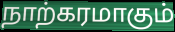
நாற்கரமாகும்